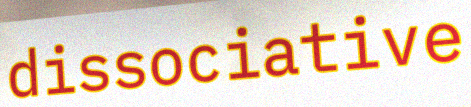
dissociative